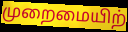
முறைமையிற்